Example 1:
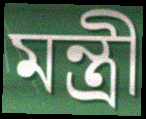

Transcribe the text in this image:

মন্ত্ৰী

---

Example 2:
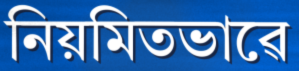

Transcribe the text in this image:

নিয়মিতভাৱে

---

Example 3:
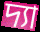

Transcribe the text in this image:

দ্যা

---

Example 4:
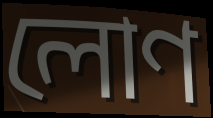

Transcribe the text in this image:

লোণ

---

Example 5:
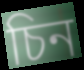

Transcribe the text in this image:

চিন